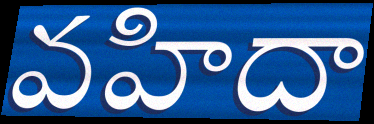
వహిదా